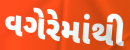
વગેરેમાંથી